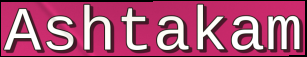
Ashtakam